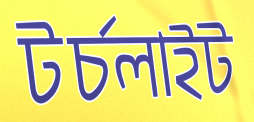
টর্চলাইট